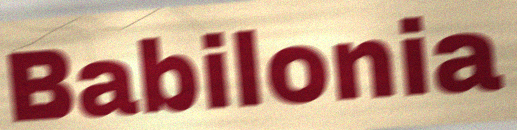
Babilonia